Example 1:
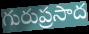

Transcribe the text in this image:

గురుప్రసాద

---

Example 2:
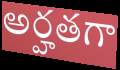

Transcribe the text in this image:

అర్హతగా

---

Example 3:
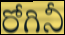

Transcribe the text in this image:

రోగినీ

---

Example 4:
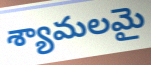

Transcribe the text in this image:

శ్యామలమై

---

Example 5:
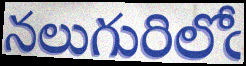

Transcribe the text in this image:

నలుగురిలోఁ